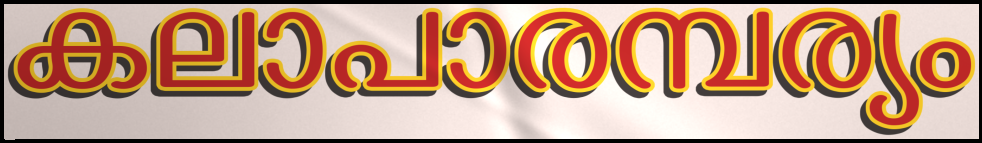
കലാപാരമ്പര്യം